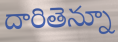
దారితెన్నూ